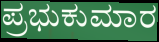
ಪ್ರಭುಕುಮಾರ